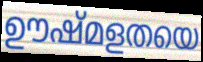
ഊഷ്മളതയെ